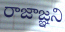
రాజాజ్ఞని